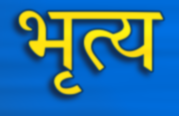
भृत्य